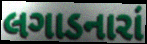
લગાડનારાં